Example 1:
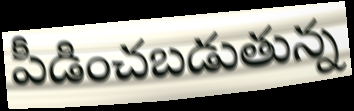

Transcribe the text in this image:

పీడించబడుతున్న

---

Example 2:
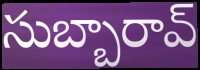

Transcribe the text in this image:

సుబ్బారావ్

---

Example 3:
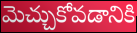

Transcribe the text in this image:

మెచ్చుకోవడానికి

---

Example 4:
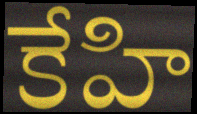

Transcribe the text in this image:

కేహి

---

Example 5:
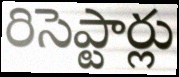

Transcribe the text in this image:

రిసెప్టార్లు